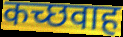
कच्छवाह